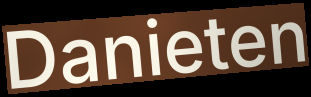
Danieten